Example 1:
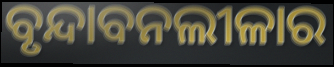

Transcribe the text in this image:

ବୃନ୍ଦାବନଲୀଳାର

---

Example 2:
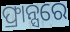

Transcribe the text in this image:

ଫ୍ରାନ୍ସରେ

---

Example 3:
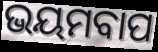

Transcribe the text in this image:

ଭୟମବାପ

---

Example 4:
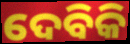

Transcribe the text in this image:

ଦେବିକି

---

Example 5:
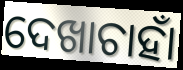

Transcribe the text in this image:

ଦେଖାଚାହାଁ